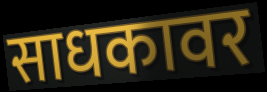
साधकावर